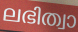
ലഭിത്വാ